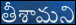
తీశామని